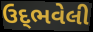
ઉદ્‌ભવેલી